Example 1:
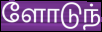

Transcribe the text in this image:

ளோடுந்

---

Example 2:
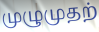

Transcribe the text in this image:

முழுமுதற்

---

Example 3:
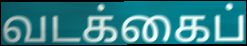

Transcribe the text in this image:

வடக்கைப்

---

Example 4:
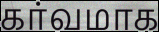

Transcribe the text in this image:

கர்வமாக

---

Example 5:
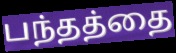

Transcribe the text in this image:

பந்தத்தை